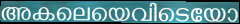
അകലെയെവിടെയോ